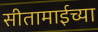
सीतामाईच्या